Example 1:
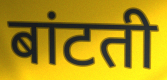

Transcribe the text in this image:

बांटती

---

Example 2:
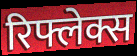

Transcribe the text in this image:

रिफ्लेक्स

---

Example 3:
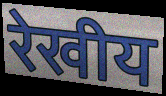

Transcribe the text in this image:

रेखीय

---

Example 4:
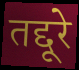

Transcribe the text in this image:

तद्दूरे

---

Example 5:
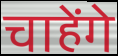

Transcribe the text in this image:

चाहेंगे